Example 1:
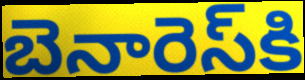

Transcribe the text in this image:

బెనారెస్‌కి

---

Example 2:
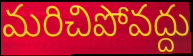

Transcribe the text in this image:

మరిచిపోవద్దు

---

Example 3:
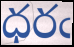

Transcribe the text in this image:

ధరఁ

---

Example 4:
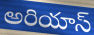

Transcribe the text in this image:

అరియాస్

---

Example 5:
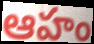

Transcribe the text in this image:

ఆహం